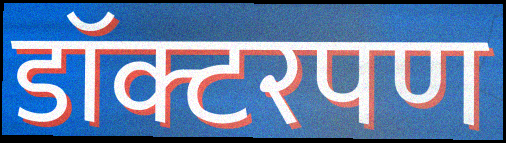
डॉक्टरपण